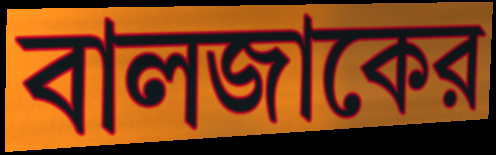
বালজাকের